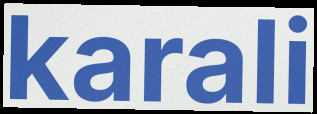
karali